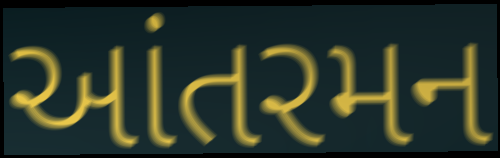
આંતરમન